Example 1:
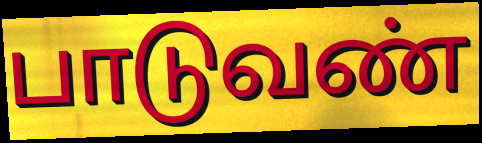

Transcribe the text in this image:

பாடுவண்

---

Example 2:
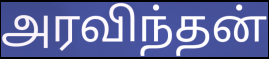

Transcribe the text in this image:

அரவிந்தன்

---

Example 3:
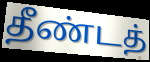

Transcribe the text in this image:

தீண்டத்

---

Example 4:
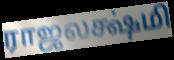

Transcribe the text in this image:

ராஜலக்ஷ்மி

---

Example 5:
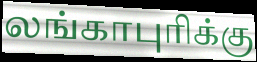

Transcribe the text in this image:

லங்காபுரிக்கு